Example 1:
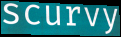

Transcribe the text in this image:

scurvy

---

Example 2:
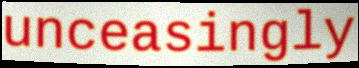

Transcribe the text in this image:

unceasingly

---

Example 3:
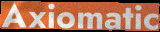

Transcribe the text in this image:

Axiomatic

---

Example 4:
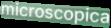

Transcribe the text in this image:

microscopica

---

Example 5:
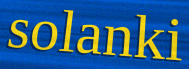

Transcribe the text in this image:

solanki